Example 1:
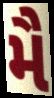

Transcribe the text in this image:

મૈ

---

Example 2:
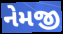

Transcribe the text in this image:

નેમજી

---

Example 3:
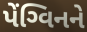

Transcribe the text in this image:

પેંગ્વિનને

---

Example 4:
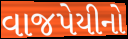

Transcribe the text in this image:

વાજપેયીનો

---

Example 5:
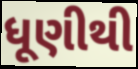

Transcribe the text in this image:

ધૂણીથી